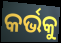
କର୍ଭକୁ